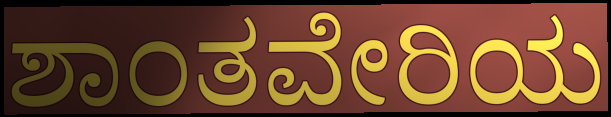
ಶಾಂತವೇರಿಯ